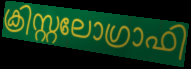
ക്രിസ്റ്റലോഗ്രാഫി